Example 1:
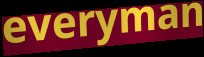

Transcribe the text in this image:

everyman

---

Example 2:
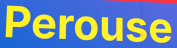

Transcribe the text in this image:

Perouse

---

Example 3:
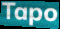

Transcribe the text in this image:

Tapo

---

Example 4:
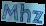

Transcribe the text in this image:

Mhz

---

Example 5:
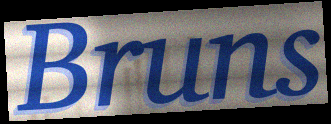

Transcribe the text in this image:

Bruns